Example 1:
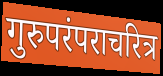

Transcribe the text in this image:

गुरुपरंपराचरित्र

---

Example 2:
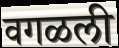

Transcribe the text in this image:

वगळली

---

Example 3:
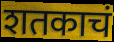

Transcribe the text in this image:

शतकाचं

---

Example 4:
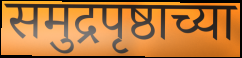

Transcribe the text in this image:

समुद्रपृष्ठाच्या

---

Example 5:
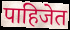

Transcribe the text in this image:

पाहिजेत